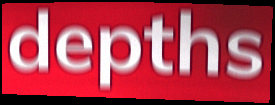
depths